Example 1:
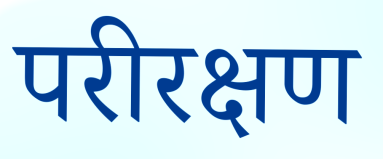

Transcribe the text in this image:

परीरक्षण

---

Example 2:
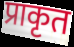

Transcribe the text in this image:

प्राकृत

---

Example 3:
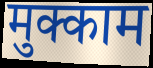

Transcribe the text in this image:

मुक्काम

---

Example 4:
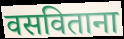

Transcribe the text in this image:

वसविताना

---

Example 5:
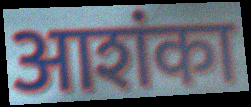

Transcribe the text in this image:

आशंका